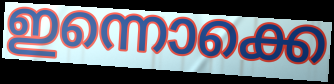
ഇന്നൊക്കെ